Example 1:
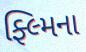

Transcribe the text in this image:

ફ્લ્મિના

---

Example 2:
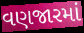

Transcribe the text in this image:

વણજારમાં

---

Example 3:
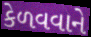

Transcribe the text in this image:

કેળવવાને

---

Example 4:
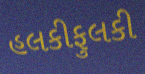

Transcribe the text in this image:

હલકીફુલકી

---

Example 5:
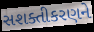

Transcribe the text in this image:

સશક્તીકરણને